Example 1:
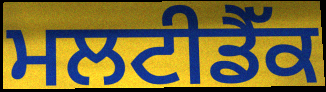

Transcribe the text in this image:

ਮਲਟੀਡੈੱਕ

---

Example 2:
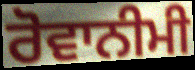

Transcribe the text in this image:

ਰੋਵਾਨੀਮੀ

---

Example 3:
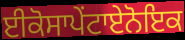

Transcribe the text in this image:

ਈਕੋਸਾਪੇਂਟਾਏਨੋਇਕ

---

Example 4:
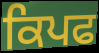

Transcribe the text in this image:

ਕਿਪਫ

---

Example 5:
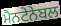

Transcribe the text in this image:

ਮੈਨਟੇਨੇਬਲ